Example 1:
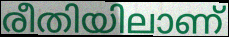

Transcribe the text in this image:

രീതിയിലാണ്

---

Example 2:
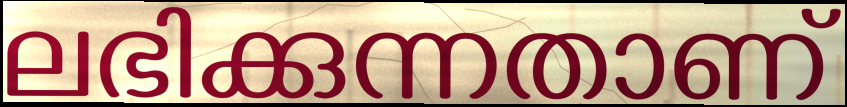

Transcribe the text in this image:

ലഭിക്കുന്നതാണ്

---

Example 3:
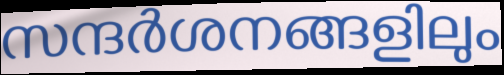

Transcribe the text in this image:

സന്ദർശനങ്ങളിലും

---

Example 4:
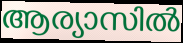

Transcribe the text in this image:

ആര്യാസിൽ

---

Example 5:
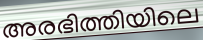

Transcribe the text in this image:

അരഭിത്തിയിലെ